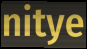
nitye